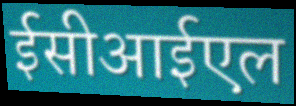
ईसीआईएल